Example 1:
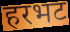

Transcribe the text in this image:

हरभट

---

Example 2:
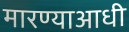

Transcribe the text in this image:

मारण्याआधी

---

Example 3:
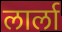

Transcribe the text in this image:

लार्ला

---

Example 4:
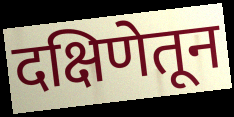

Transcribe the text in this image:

दक्षिणेतून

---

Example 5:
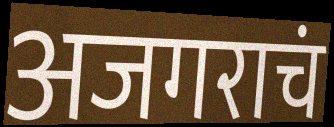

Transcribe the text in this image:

अजगराचं